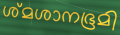
ശ്മശാനഭൂമി